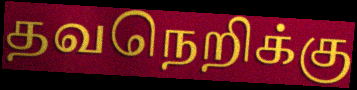
தவநெறிக்கு